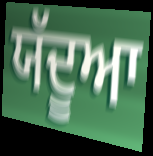
ਯੱਦੂਆ